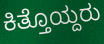
ಕಿತ್ತೊಯ್ದರು